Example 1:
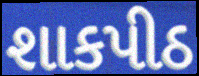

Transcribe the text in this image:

શાકપીઠ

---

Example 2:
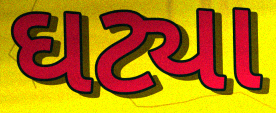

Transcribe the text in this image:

ઘટ્યા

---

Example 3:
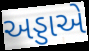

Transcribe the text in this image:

અડ્ડાએ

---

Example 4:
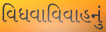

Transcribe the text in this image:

વિધવાવિવાહનું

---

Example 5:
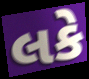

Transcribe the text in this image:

લકે